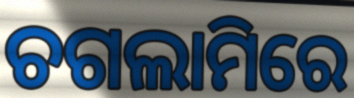
ଚଗଲାମିରେ